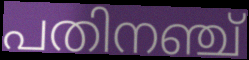
പതിനഞ്ച്